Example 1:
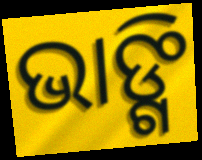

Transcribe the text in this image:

ଭାଙ୍ଗି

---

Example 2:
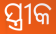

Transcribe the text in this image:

ସ୍ତ୍ରୀକ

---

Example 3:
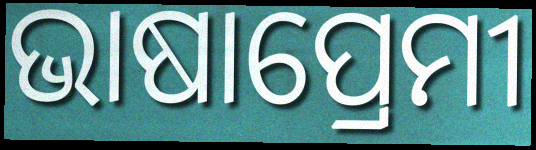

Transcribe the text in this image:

ଭାଷାପ୍ରେମୀ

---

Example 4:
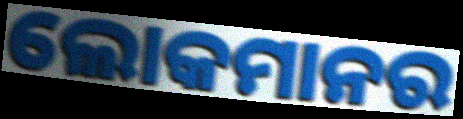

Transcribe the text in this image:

ଲୋକମାନର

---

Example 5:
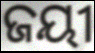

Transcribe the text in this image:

ଜୟୀ